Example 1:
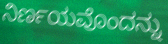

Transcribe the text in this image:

ನಿರ್ಣಯವೊಂದನ್ನು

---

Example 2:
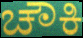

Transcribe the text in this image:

ಚೌಕಿ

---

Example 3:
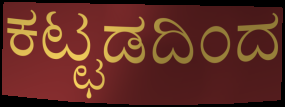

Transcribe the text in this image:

ಕಟ್ಟಡದಿಂದ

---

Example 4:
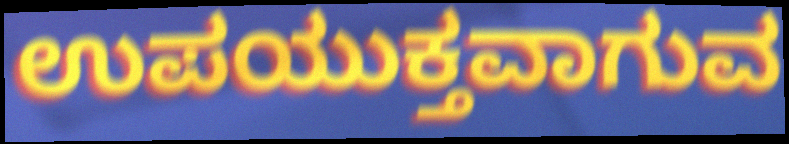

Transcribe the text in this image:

ಉಪಯುಕ್ತವಾಗುವ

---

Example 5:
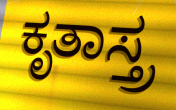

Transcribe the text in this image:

ಕೃತಾಸ್ತ್ರ